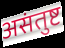
असंतुष्ट